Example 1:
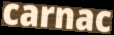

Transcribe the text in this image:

carnac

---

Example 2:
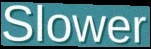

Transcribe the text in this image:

Slower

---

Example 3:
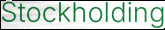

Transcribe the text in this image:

Stockholding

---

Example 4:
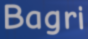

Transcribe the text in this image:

Bagri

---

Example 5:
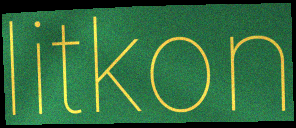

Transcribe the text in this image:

litkon